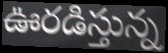
ఊరడిస్తున్న